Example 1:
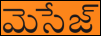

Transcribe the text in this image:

మెసేజ్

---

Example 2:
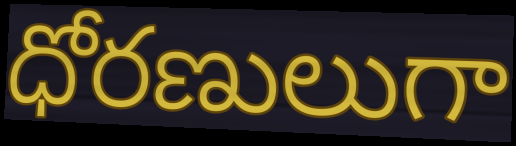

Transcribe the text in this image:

ధోరణులుగా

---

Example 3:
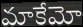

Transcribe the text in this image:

మాకేమో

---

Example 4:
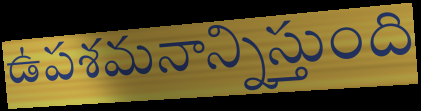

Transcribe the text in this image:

ఉపశమనాన్నిస్తుంది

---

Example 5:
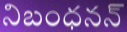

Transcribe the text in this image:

నిబంధనన్